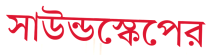
সাউন্ডস্কেপের